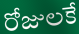
రోజులకే